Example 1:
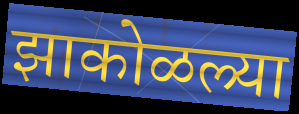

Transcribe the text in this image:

झाकोळल्या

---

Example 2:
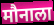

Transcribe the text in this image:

मौनाला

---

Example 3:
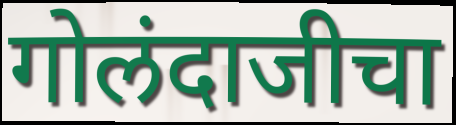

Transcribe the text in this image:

गोलंदाजीचा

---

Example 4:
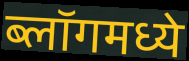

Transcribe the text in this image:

ब्लॉगमध्ये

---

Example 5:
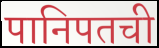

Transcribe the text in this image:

पानिपतची